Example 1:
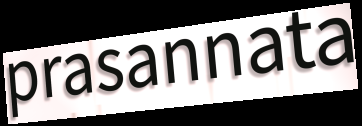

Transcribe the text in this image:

prasannata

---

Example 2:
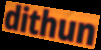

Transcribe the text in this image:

dithun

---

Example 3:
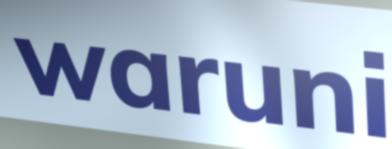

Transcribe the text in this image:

waruni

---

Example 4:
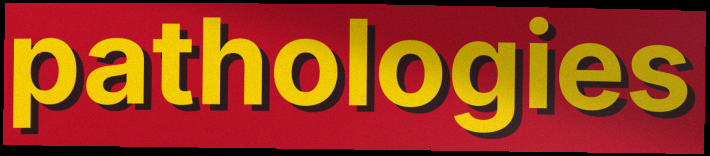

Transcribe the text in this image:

pathologies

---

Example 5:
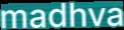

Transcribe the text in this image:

madhva